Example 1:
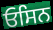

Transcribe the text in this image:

ਓਸਿਨ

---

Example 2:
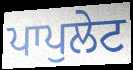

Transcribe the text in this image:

ਪਾਪੁਲੇਟ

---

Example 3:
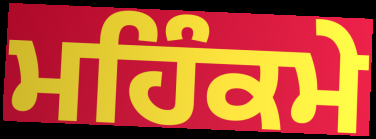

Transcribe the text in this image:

ਮਹਿੰਕਮੇ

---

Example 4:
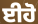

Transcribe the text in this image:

ਈਹੋ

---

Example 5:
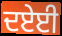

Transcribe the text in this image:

ਦਏਈ